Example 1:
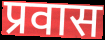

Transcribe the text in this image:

प्रवास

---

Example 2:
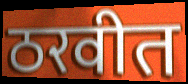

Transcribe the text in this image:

ठरवीत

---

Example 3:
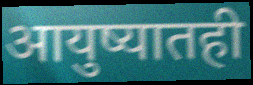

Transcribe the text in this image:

आयुष्यातही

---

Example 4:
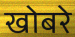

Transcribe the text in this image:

खोबरे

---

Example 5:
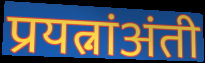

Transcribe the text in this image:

प्रयत्नांअंती